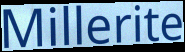
Millerite